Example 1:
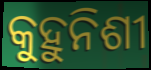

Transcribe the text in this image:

କୁହୁନିଶୀ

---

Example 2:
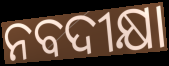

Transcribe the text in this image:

ନବଦୀକ୍ଷା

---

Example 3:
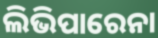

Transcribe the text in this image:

ଲିଭିପାରେନା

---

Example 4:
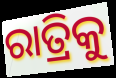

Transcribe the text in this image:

ରାତ୍ରିକୁ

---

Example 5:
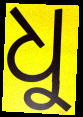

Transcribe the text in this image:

ଧୁ